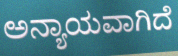
ಅನ್ಯಾಯವಾಗಿದೆ